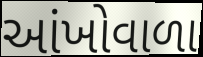
આંખોવાળા